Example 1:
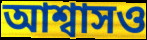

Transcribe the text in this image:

আশ্বাসও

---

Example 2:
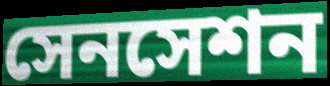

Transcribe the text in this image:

সেনসেশন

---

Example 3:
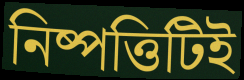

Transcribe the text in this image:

নিষ্পত্তিটিই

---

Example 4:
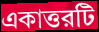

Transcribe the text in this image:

একাত্তরটি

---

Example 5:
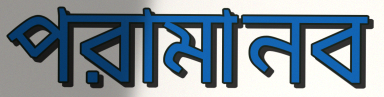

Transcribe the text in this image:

পরামানব